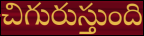
చిగురుస్తుంది